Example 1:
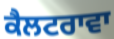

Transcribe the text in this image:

ਕੈਲਟਰਾਵਾ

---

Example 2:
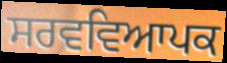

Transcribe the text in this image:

ਸਰਵਵਿਆਪਕ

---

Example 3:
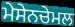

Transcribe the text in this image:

ਮੇਸੇਨਚੇਮਲ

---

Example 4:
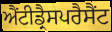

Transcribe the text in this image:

ਐਂਟੀਡ੍ਰੈਸਪਰੈਸੈਂਟ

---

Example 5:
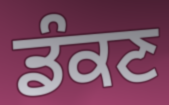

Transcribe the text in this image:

ਡੰਕਣ